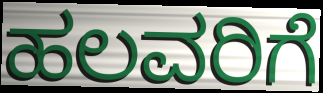
ಹಲವರಿಗೆ